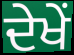
ਦੇਖੇਂ